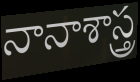
నానాశాస్త్ర